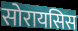
सोरायसिस